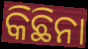
କିଛିନା